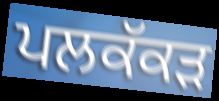
ਪਲਕੱਕੜ